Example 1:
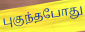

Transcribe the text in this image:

புகுந்தபோது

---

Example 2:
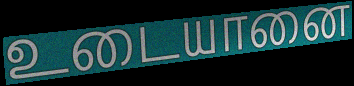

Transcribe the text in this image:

உடையானை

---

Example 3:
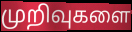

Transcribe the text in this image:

முறிவுகளை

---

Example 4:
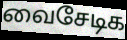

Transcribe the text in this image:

வைசேடிக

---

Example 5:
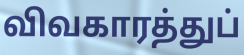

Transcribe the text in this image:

விவகாரத்துப்